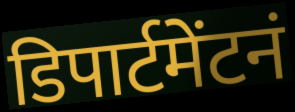
डिपार्टमेंटनं